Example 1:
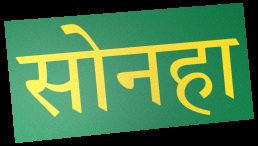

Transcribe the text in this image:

सोनहा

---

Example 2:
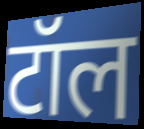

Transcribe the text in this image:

टॉल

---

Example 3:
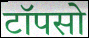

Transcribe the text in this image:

टॉपसो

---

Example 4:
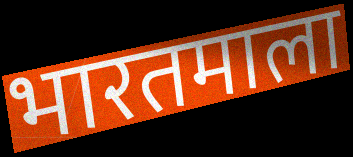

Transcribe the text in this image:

भारतमाला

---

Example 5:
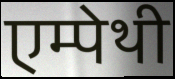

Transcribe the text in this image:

एम्पेथी